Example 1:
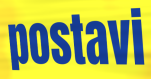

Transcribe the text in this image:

postavi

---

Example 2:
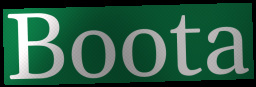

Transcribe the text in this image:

Boota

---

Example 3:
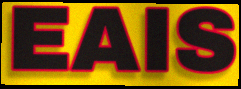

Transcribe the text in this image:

EAIS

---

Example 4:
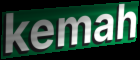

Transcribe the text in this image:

kemah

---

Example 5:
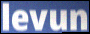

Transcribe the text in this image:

levun